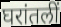
घरांतलीं